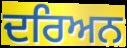
ਦਰਿਅਨ